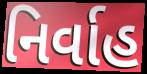
નિર્વાહ